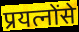
प्रयत्नोंसे